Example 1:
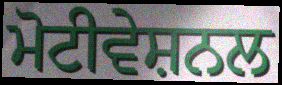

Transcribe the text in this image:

ਮੋਟੀਵੇਸ਼ਨਲ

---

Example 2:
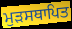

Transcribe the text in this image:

ਮੁੜਸਥਾਪਿਤ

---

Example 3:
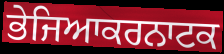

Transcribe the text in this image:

ਭੇਜਿਆਕਰਨਾਟਕ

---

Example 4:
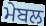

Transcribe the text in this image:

ਮੇਬਲ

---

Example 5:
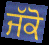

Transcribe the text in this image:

ਜੱਕੋ